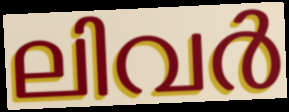
ലിവർ